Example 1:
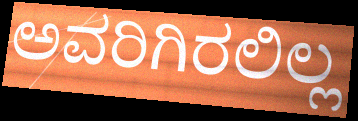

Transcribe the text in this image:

ಅವರಿಗಿರಲಿಲ್ಲ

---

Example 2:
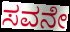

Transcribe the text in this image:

ಸವನೇ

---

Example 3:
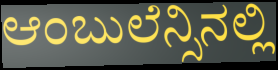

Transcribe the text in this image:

ಆಂಬುಲೆನ್ಸಿನಲ್ಲಿ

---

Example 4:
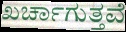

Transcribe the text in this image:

ಖರ್ಚಾಗುತ್ತವೆ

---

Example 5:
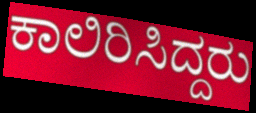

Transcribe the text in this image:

ಕಾಲಿರಿಸಿದ್ದರು